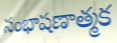
సంభాషణాత్మక